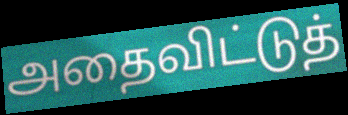
அதைவிட்டுத்